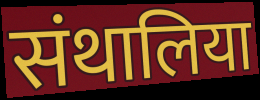
संथालिया